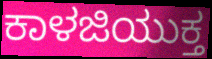
ಕಾಳಜಿಯುಕ್ತ